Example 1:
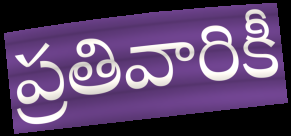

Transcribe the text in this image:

ప్రతివారికీ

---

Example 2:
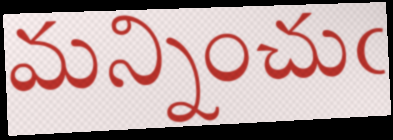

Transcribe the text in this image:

మన్నించుఁ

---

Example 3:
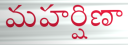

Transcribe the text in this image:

మహర్షిణా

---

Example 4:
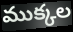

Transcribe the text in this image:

ముక్కల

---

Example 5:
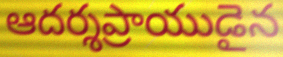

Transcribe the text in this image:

ఆదర్శప్రాయుడైన